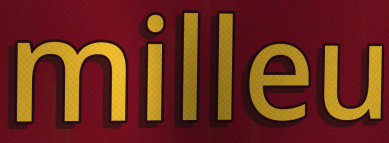
milleu